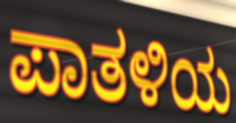
ಪಾತಳಿಯ